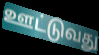
ஊட்டுவது